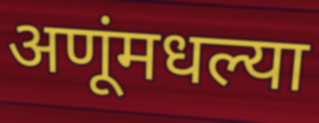
अणूंमधल्या